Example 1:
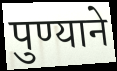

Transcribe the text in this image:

पुण्याने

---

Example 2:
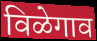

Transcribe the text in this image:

विळेगाव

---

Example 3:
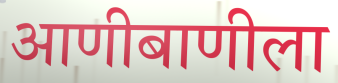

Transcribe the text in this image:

आणीबाणीला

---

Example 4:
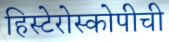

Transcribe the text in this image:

हिस्टेरोस्कोपीची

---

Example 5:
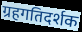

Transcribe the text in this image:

ग्रहगतिदर्शक